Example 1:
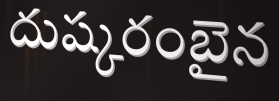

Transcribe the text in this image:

దుష్కరంబైన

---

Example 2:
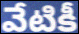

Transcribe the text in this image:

వేటికీ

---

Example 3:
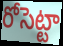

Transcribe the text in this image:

రోసెట్టా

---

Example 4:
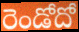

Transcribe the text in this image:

రెండోదో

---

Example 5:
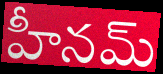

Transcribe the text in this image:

హీనమ్